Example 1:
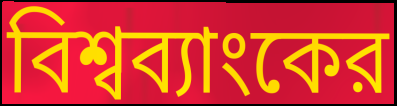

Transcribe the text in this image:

বিশ্বব্যাংকের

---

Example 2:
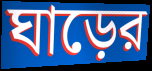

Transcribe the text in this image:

ঘাড়ের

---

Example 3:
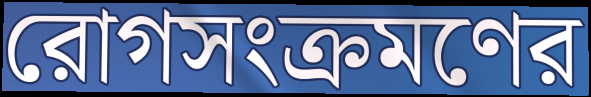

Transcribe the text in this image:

রোগসংক্রমণের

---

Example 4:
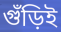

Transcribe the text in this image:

গুঁড়িই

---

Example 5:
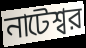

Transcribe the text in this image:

নাটেশ্বর